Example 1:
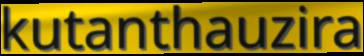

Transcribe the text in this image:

kutanthauzira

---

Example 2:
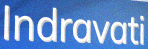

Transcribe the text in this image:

Indravati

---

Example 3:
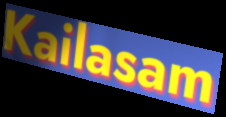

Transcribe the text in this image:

Kailasam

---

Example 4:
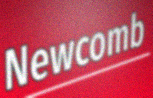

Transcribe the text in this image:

Newcomb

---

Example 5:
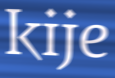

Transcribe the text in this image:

kije